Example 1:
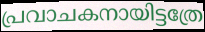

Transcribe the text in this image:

പ്രവാചകനായിട്ടത്രേ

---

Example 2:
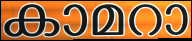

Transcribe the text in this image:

കാമറാ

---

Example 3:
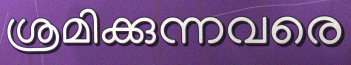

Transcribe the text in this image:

ശ്രമിക്കുന്നവരെ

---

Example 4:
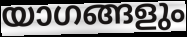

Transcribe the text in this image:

യാഗങ്ങളും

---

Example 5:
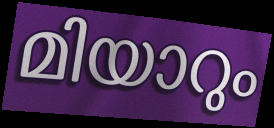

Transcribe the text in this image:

മിയാറും